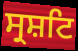
ਸ੍ਰਸ਼ਟਿ